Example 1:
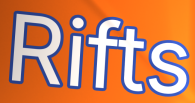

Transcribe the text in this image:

Rifts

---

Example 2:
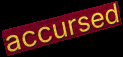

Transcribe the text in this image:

accursed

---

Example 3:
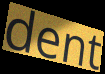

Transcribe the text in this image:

dent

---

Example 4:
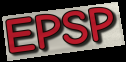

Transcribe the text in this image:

EPSP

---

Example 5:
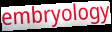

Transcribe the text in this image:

embryology